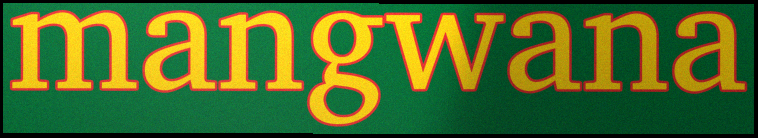
mangwana